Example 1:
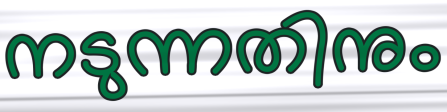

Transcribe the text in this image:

നടുന്നതിനും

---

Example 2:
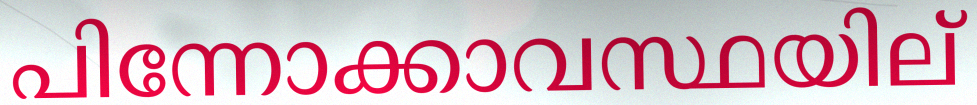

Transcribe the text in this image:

പിന്നോക്കാവസ്ഥയില്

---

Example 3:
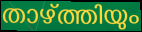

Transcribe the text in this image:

താഴ്ത്തിയും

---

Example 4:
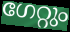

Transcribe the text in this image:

ഗേറ്റും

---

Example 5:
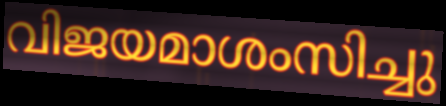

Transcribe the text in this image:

വിജയമാശംസിച്ചു